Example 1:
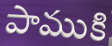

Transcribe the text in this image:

పాముకి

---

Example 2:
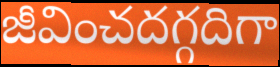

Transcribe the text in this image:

జీవించదగ్గదిగా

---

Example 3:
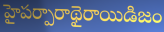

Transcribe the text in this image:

హైపర్పారాథైరాయిడిజం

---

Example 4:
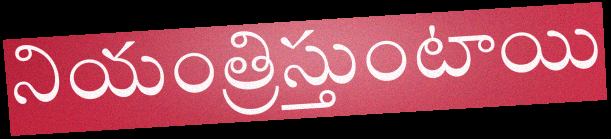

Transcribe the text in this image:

నియంత్రిస్తుంటాయి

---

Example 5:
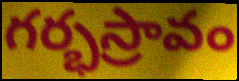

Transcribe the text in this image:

గర్భస్రావం